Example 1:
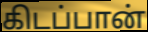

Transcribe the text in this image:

கிடப்பான்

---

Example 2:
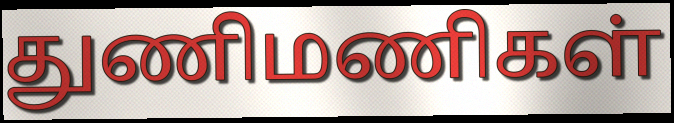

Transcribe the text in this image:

துணிமணிகள்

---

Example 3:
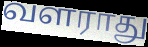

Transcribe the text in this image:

வளராது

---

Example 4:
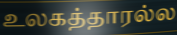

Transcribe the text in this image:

உலகத்தாரல்ல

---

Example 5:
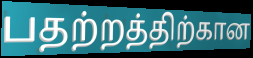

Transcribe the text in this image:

பதற்றத்திற்கான